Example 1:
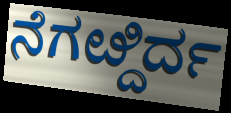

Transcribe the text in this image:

ನೆಗೞ್ದಿರ್ದ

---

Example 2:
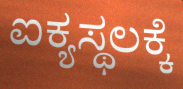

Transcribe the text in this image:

ಐಕ್ಯಸ್ಥಲಕ್ಕೆ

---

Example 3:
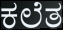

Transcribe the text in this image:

ಕಲೆತ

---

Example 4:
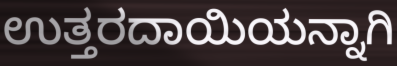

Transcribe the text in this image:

ಉತ್ತರದಾಯಿಯನ್ನಾಗಿ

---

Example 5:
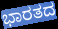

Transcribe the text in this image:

ಭಾರತದ